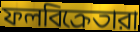
ফলবিক্রেতারা